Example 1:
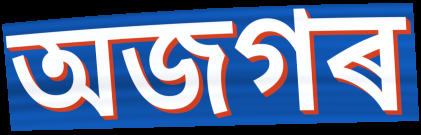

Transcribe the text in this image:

অজগৰ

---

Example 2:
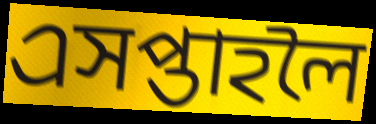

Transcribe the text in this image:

এসপ্তাহলৈ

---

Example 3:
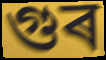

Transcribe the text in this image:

গুৰ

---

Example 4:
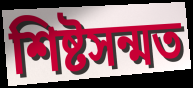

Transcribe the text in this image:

শিষ্টসন্মত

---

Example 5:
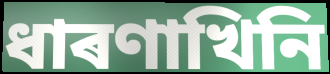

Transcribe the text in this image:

ধাৰণাখিনি